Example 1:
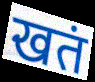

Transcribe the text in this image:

खतं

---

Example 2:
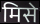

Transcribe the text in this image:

मिसे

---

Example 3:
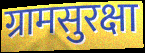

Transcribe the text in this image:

ग्रामसुरक्षा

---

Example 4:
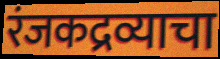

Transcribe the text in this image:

रंजकद्रव्याचा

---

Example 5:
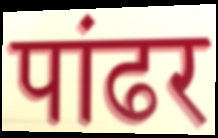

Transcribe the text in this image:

पांढर